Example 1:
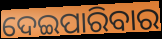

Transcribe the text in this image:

ଦେଇପାରିବାର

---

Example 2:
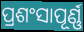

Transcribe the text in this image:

ପ୍ରଶଂସାପୂର୍ଣ୍ଣ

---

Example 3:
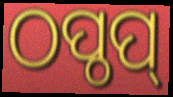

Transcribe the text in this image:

ଠପ୍ଠପ୍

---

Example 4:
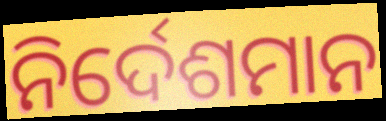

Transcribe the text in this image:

ନିର୍ଦେଶମାନ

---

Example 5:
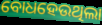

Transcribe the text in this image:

ବୋଧହେଉଥିଲା